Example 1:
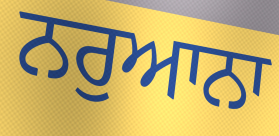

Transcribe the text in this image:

ਨਰੁਆਨਾ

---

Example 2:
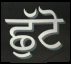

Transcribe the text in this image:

ਛੁੱਟੋ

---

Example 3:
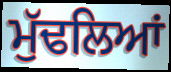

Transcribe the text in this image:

ਮੁੱਢਲਿਆਂ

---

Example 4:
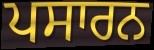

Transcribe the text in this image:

ਪਸਾਰਨ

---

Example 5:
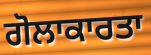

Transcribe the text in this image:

ਗੋਲਾਕਾਰਤਾ